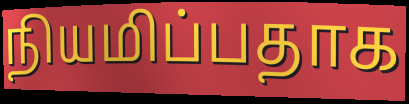
நியமிப்பதாக